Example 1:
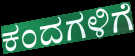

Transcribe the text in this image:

ಕಂದಗಳಿಗೆ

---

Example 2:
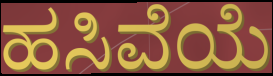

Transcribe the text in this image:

ಹಸಿವೆಯೆ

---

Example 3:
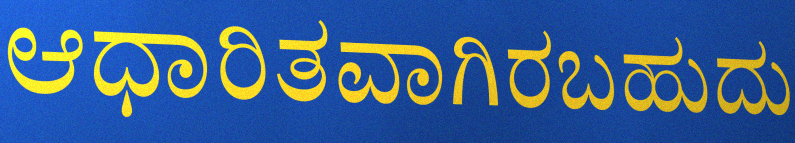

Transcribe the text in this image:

ಆಧಾರಿತವಾಗಿರಬಹುದು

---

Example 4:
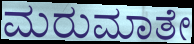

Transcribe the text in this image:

ಮರುಮಾತೇ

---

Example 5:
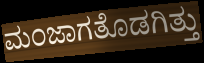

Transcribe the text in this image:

ಮಂಜಾಗತೊಡಗಿತ್ತು